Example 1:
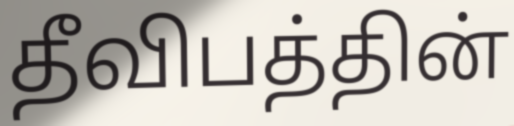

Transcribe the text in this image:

தீவிபத்தின்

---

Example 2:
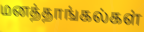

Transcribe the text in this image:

மனத்தாங்கல்கள்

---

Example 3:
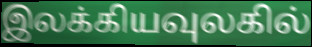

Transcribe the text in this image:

இலக்கியவுலகில்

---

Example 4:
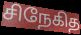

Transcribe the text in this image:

சிநேகித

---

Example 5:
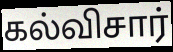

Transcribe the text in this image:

கல்விசார்